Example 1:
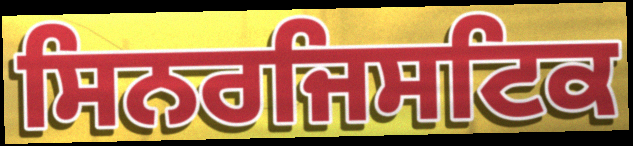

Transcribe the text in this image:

ਸਿਨਰਜਿਸਟਿਕ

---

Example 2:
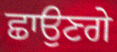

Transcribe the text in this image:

ਛਾਉਣਗੇ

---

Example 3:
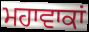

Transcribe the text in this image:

ਮਹਾਵਾਕਾਂ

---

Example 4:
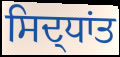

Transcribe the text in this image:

ਸਿਦ੍ਧਾਂਤ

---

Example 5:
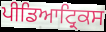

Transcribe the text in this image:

ਪੀਡਿਆਟ੍ਰਿਕਸ